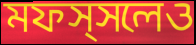
মফস্‌সলেও